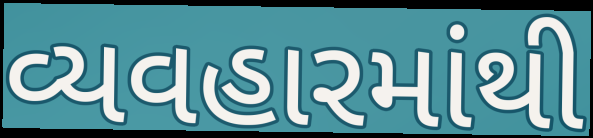
વ્યવહારમાંથી